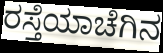
ರಸ್ತೆಯಾಚೆಗಿನ